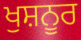
ਖੁਸ਼ਨੂਰ